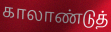
காலாண்டுத்